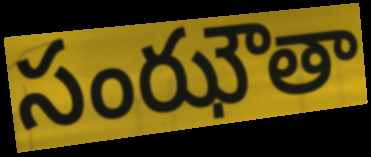
సంఝౌతా